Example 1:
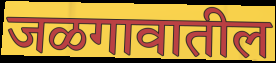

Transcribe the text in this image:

जळगावातील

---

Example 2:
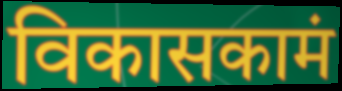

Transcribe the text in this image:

विकासकामं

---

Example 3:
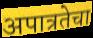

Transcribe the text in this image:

अपात्रतेचा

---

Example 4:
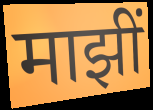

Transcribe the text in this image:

माझीं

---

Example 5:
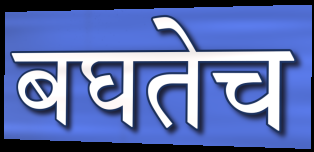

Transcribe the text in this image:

बघतेच